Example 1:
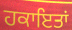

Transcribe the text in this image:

ਹਕਾਇਤਾਂ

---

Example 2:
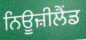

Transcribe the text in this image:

ਨਿਊਜ਼ੀਲੈੰਡ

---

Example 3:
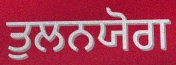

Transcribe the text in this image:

ਤੁਲਨਯੋਗ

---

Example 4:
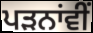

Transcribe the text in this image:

ਪੜਨਾਂਵੀਂ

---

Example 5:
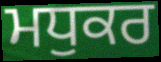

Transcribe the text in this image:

ਮਧੁਕਰ